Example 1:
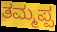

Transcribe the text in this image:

ತಮ್ಮಪ್ಪ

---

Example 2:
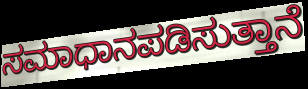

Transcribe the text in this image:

ಸಮಾಧಾನಪಡಿಸುತ್ತಾನೆ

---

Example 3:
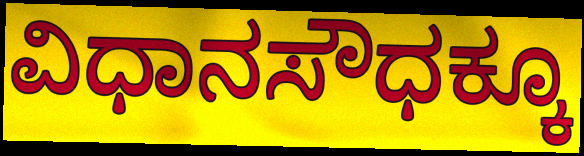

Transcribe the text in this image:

ವಿಧಾನಸೌಧಕ್ಕೂ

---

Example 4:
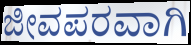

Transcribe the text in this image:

ಜೀವಪರವಾಗಿ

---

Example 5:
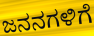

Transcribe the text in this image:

ಜನನಗಳಿಗೆ